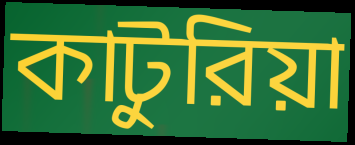
কাটুরিয়া